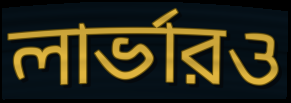
লার্ভারও